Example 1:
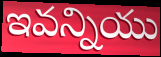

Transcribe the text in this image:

ఇవన్నియు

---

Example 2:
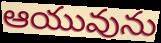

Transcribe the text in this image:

ఆయువును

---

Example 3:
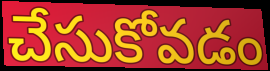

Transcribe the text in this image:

చేసుకోవడం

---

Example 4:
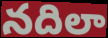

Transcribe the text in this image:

నదిలా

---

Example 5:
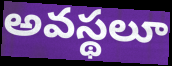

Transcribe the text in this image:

అవస్థలూ